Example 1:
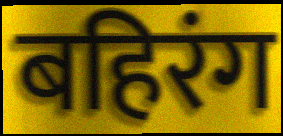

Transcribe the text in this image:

बहिरंग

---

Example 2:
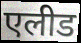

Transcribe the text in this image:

एलीड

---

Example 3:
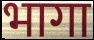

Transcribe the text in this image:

भागा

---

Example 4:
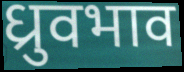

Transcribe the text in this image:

ध्रुवभाव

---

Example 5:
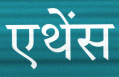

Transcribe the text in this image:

एथेंस